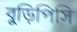
বুড়িপিসি